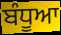
ਬੰਧੂਆ